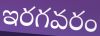
ఇరగవరం